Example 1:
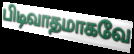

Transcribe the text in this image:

பிடிவாதமாகவே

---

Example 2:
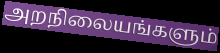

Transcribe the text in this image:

அறநிலையங்களும்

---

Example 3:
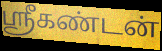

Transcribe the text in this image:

ஸ்ரீகண்டன்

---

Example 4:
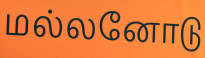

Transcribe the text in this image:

மல்லனோடு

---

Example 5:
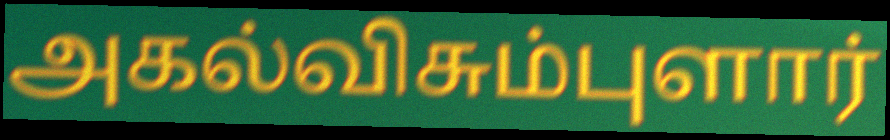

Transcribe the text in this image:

அகல்விசும்புளார்